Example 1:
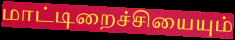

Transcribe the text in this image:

மாட்டிறைச்சியையும்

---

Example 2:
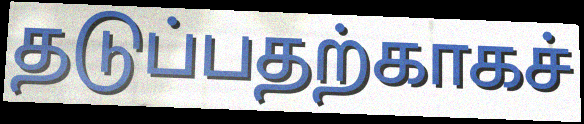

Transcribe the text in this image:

தடுப்பதற்காகச்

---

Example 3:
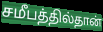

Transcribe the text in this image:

சமீபத்தில்தான்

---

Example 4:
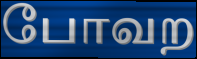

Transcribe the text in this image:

போவற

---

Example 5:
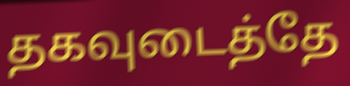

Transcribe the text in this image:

தகவுடைத்தே